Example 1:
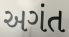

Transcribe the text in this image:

અગંત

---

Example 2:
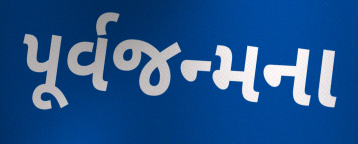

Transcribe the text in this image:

પૂર્વજન્મના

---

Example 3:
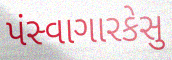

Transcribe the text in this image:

પંસ્વાગારકેસુ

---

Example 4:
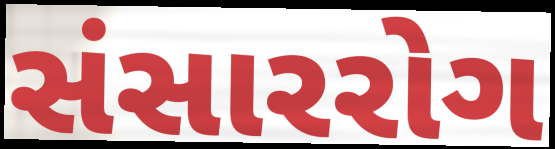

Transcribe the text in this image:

સંસારરોગ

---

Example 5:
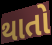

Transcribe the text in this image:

થાતો